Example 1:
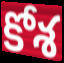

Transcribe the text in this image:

కోశ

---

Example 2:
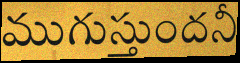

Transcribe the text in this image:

ముగుస్తుందనీ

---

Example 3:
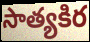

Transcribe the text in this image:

సాత్యకిర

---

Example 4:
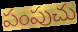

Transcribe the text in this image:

పంపుచు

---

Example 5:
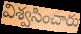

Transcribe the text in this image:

విశ్వసించారు